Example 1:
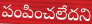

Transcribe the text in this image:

పంపించలేదని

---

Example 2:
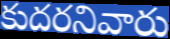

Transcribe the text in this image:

కుదరనివారు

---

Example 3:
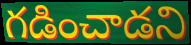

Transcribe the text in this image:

గడించాడని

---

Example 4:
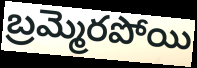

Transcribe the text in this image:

బ్రమ్మెరపోయి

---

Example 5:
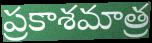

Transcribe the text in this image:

ప్రకాశమాత్ర